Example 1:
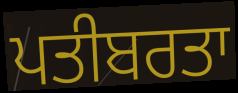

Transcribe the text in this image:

ਪਤੀਬਰਤਾ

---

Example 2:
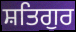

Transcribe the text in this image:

ਸ਼ਤਿਗੁਰ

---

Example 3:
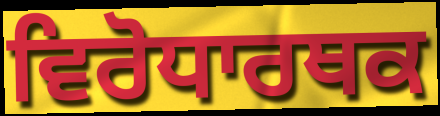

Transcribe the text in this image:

ਵਿਰੋਧਾਰਥਕ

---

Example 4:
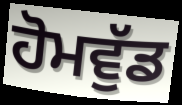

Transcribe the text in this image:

ਹੋਮਵੁੱਡ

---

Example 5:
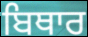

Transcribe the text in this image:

ਬਿਥਾਰ